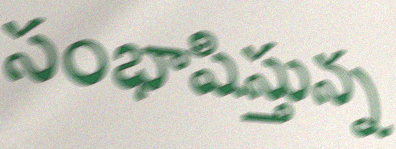
సంభాషిస్తున్న